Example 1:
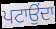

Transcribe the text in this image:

ਪਟਾਉਂਦਾ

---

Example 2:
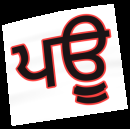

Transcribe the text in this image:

ਪਉੂ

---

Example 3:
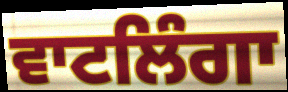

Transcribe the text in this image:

ਵਾਟਲਿੰਗਾ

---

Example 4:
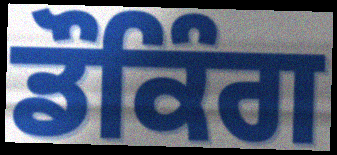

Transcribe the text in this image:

ਡੌਕਿੰਗ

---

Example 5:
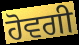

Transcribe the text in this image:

ਹੋਵਗੀ